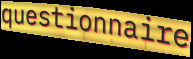
questionnaire